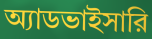
অ্যাডভাইসারি